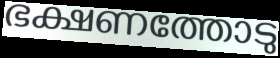
ഭക്ഷണത്തോടു